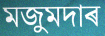
মজুমদাৰ